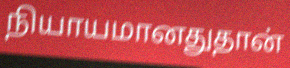
நியாயமானதுதான்